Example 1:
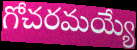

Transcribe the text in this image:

గోచరమయ్యే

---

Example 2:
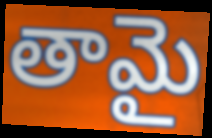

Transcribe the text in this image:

తామై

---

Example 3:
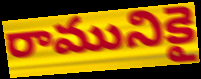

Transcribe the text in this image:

రామునికై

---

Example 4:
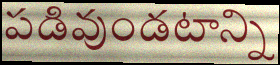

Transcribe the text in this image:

పడివుండటాన్ని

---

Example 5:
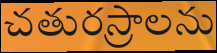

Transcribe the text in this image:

చతురస్రాలను